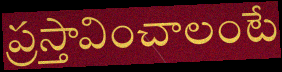
ప్రస్తావించాలంటే